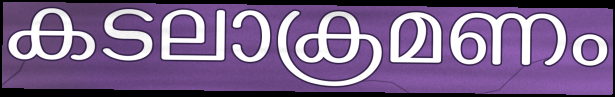
കടലാക്രമണം